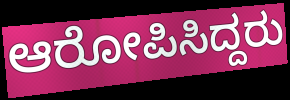
ಆರೋಪಿಸಿದ್ದರು